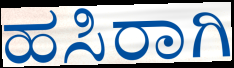
ಹಸಿರಾಗಿ